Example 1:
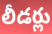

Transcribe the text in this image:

లీడర్లు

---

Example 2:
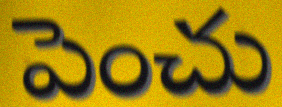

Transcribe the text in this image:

పెంచు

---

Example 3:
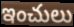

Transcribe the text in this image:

ఇంచులు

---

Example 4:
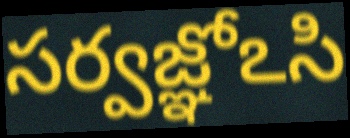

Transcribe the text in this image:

సర్వజ్ఞోఽసి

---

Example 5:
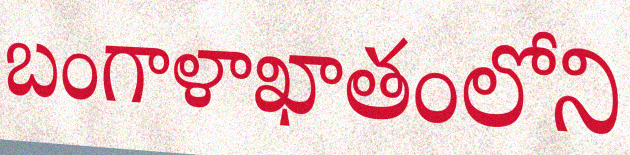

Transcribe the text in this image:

బంగాళాఖాతంలోని